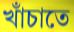
খাঁচাতে